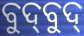
ବୁଦ୍‍ବୁଦ୍